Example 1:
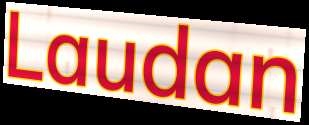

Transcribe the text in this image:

Laudan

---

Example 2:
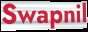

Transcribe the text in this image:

Swapnil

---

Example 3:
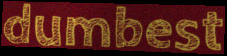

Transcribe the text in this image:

dumbest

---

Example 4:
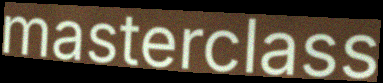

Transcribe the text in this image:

masterclass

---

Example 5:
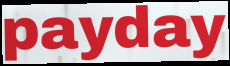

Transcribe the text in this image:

payday